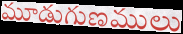
మూడుగుణములు